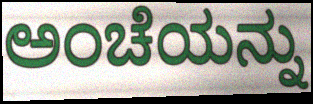
ಅಂಚೆಯನ್ನು